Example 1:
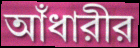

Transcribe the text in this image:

আঁধারীর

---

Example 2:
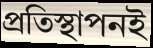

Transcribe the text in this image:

প্রতিস্থাপনই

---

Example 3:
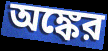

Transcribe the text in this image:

অঙ্কের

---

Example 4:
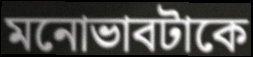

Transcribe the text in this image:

মনোভাবটাকে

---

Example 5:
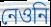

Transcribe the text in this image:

নেওনি